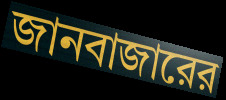
জানবাজারের